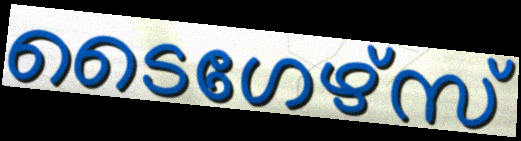
ടൈഗേഴ്സ്